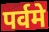
पर्वमे